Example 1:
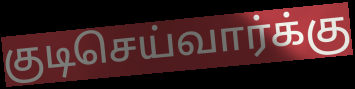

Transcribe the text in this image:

குடிசெய்வார்க்கு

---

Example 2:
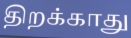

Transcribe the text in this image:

திறக்காது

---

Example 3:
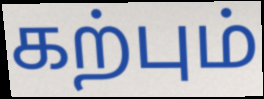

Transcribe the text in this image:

கற்பும்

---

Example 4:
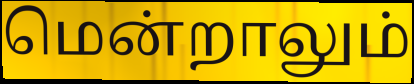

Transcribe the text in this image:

மென்றாலும்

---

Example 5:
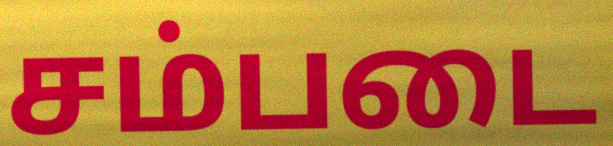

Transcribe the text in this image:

சம்படை